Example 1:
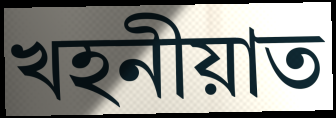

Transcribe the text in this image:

খহনীয়াত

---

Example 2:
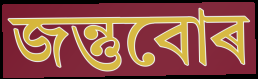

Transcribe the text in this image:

জন্তুবোৰ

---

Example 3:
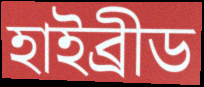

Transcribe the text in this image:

হাইব্ৰীড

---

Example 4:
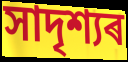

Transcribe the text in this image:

সাদৃশ্যৰ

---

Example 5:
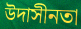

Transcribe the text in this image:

উদাসীনতা